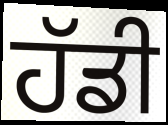
ਹੱਡੀ